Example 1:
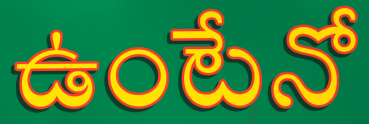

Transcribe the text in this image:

ఉంటేనో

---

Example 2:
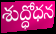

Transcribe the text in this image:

శుద్ధోధన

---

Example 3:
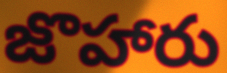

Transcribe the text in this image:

జొహారు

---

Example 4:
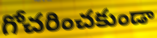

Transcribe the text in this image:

గోచరించకుండా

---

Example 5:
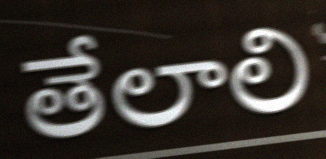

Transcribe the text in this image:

తేలాలి